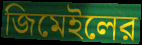
জিমেইলের